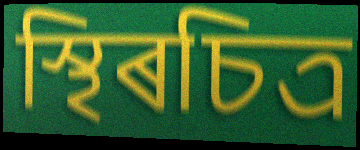
স্থিৰচিত্ৰ